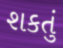
શકતું